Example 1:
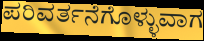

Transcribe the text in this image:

ಪರಿವರ್ತನೆಗೊಳ್ಳುವಾಗ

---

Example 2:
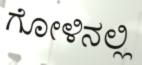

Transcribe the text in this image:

ಗೋಳಿನಲ್ಲಿ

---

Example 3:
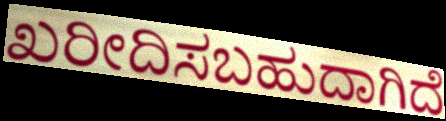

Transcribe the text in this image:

ಖರೀದಿಸಬಹುದಾಗಿದೆ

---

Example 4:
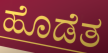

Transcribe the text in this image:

ಹೊಡೆತ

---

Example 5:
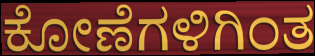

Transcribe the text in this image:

ಕೋಣೆಗಳಿಗಿಂತ